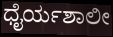
ಧೈರ್ಯಶಾಲೀ